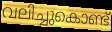
വലിച്ചുകൊണ്ട്